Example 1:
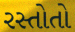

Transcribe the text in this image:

રસ્તોતો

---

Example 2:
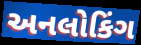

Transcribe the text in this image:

અનલોકિંગ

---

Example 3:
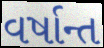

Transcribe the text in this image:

વર્ષાન્ત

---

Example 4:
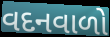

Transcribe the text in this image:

વદનવાળો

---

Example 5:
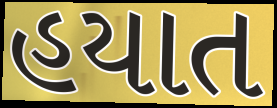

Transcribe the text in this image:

હયાત